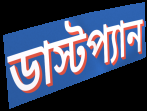
ডাস্টপ্যান